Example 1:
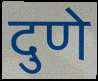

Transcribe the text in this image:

दुणे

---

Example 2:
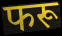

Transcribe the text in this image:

फरू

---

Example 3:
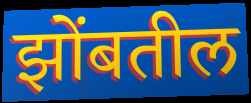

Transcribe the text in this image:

झोंबतील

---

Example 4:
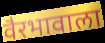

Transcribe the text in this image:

वैरभावाला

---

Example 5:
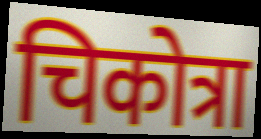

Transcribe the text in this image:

चिकोत्रा